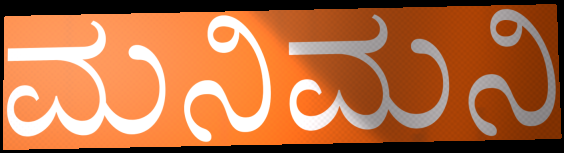
ಮನಿಮನಿ